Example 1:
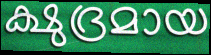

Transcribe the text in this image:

ക്ഷുദ്രമായ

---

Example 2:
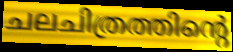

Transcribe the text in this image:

ചലചിത്രത്തിന്റെ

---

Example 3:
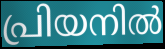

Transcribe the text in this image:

പ്രിയനിൽ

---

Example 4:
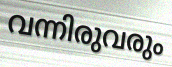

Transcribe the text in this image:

വന്നിരുവരും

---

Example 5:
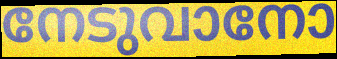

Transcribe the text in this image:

നേടുവാനോ